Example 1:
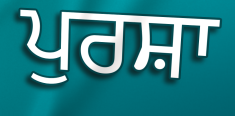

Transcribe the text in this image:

ਪੁਰਸ਼ਾ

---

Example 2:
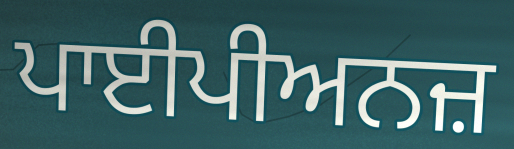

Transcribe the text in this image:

ਪਾਈਪੀਅਨਜ਼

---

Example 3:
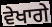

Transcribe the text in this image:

ਵੇਖਾਗੇ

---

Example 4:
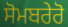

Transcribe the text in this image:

ਸੋਮਬਰੇਰੋ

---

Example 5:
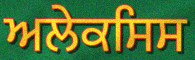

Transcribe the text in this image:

ਅਲੇਕਸਿਸ